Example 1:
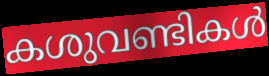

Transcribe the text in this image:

കശുവണ്ടികൾ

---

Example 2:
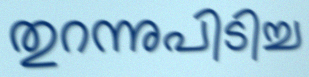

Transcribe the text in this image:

തുറന്നുപിടിച്ച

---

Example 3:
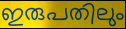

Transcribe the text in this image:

ഇരുപതിലും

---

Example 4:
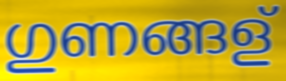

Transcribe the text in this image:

ഗുണങ്ങള്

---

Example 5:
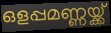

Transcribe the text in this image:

ഒളപ്പമണ്ണയ്ക്ക്